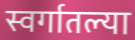
स्वर्गातल्या